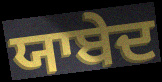
ਯਾਬੇਦ